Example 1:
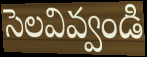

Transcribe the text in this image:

సెలవివ్వండి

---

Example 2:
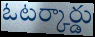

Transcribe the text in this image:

ఓటర్కార్డు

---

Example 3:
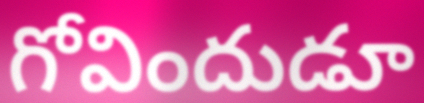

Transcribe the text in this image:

గోవిందుడూ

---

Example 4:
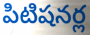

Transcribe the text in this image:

పిటిషనర్ల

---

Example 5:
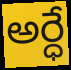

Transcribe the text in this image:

అర్ధే